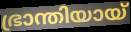
ഭ്രാന്തിയായ്